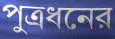
পুত্রধনের